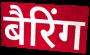
बैरिंग